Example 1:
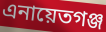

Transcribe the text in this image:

এনায়েতগঞ্জ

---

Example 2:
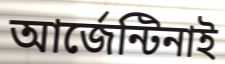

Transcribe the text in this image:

আর্জেন্টিনাই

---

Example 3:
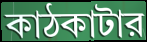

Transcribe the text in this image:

কাঠকাটার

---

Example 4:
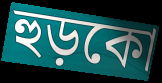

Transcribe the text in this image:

হুড়কো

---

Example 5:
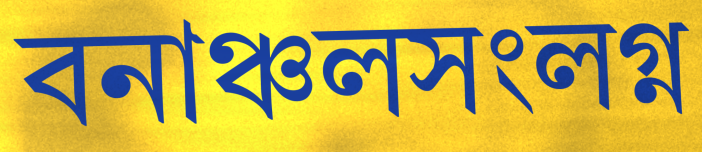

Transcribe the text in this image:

বনাঞ্চলসংলগ্ন